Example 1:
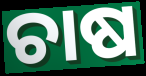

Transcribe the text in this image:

ଚାଷ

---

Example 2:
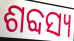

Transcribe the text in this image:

ଶବ୍ଦସ୍ଯ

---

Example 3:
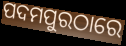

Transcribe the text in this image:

ପଦମପୁରଠାରେ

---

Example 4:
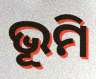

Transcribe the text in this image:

ଭୂମି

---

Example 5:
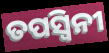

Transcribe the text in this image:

ତପସ୍ଵିନୀ